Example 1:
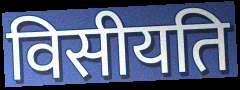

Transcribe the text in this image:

विसीयति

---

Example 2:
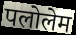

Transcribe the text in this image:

पलोलेम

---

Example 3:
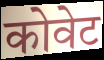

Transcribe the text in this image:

कोवेट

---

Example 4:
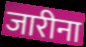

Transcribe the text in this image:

जारीना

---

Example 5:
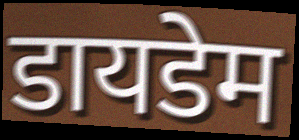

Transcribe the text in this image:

डायडेम